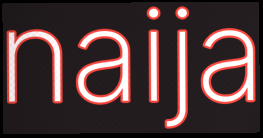
naija